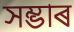
সম্ভাৰ